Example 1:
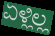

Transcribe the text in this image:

ಏಳ್ಲಿಲ್ಲ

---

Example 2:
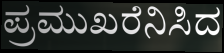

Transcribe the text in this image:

ಪ್ರಮುಖರೆನಿಸಿದ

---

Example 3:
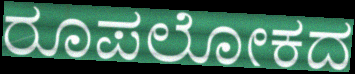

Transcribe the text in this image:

ರೂಪಲೋಕದ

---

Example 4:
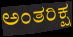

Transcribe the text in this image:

ಅಂತರಿಕ್ಷ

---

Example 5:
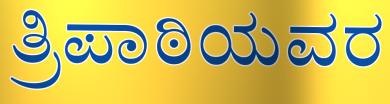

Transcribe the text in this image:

ತ್ರಿಪಾಠಿಯವರ